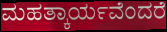
ಮಹತ್ಕಾರ್ಯವೆಂದರೆ